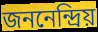
জননেন্দ্রিয়